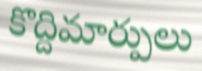
కొద్దిమార్పులు